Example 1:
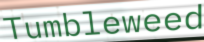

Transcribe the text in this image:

Tumbleweed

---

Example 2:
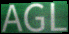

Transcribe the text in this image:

AGL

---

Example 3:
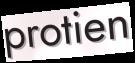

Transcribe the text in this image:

protien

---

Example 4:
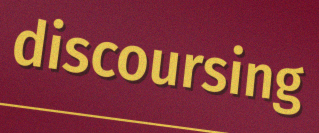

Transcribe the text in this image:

discoursing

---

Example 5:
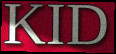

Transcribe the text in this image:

KID